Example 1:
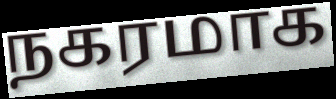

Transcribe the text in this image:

நகரமாக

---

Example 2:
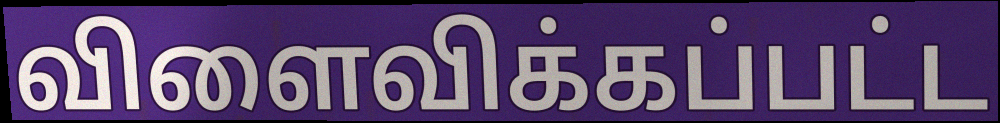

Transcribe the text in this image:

விளைவிக்கப்பட்ட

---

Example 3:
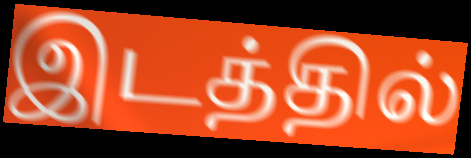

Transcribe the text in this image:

இடத்தில்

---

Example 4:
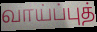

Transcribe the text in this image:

வாய்ப்புத்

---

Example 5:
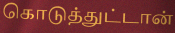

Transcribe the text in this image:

கொடுத்துட்டான்